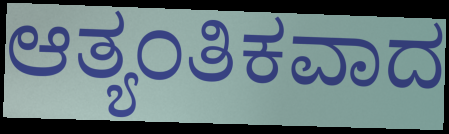
ಆತ್ಯಂತಿಕವಾದ